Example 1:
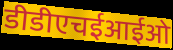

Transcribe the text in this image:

डीडीएचईआईओ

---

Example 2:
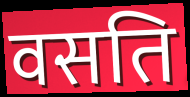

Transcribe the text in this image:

वसति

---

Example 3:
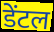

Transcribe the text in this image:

डेंटल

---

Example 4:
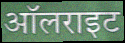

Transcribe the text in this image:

ऑलराइट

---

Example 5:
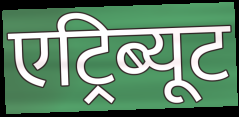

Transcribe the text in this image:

एट्रिब्यूट